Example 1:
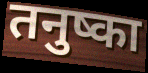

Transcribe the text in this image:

तनुष्का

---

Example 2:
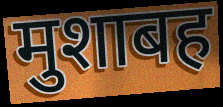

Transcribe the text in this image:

मुशाबह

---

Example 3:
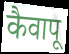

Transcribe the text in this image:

कैवापू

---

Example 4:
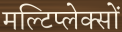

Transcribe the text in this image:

मल्टिप्लेक्सों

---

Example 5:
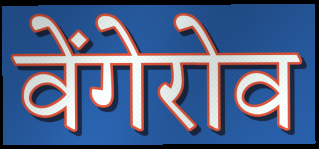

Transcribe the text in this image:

वेंगेरोव